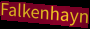
Falkenhayn